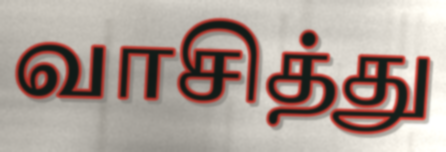
வாசித்து